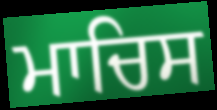
ਮਾਚਿਸ